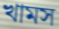
খামস